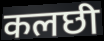
कलछी